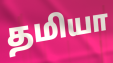
தமியா